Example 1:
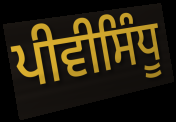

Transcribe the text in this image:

ਪੀਵੀਸਿੰਧੂ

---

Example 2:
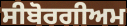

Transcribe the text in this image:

ਸੀਬੋਰਗੀਅਮ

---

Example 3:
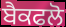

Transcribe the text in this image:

ਬੈਕਫਲੋ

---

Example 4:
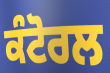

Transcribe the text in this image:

ਕੰਟੋਰਲ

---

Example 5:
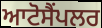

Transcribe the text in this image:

ਆਟੋਸੈਂਪਲਰ